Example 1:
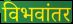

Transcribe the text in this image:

विभवांतर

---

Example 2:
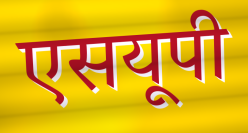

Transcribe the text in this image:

एसयूपी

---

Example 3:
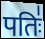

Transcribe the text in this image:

पतिः॑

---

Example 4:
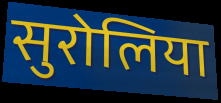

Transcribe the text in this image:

सुरोलिया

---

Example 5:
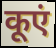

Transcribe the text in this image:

कूएं